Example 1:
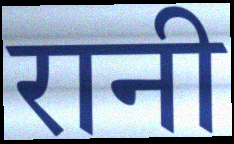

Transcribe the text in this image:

रानी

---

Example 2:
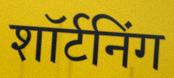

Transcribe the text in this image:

शॉर्टनिंग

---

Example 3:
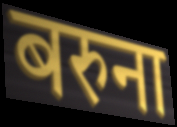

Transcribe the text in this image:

बरुना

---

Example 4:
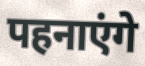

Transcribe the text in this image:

पहनाएंगे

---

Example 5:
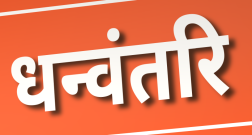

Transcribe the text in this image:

धन्वंतरि